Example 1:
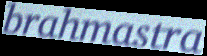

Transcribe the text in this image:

brahmastra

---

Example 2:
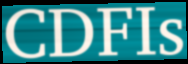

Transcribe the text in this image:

CDFIs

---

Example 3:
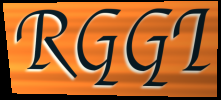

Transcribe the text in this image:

RGGI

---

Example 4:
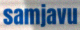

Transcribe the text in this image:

samjavu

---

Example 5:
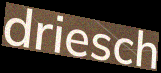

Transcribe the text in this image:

driesch